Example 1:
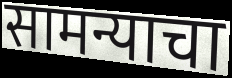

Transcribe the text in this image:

सामन्याचा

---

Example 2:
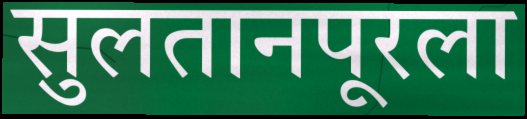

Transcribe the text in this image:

सुलतानपूरला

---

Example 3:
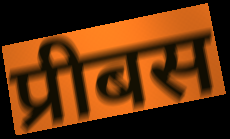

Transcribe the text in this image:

प्रीबस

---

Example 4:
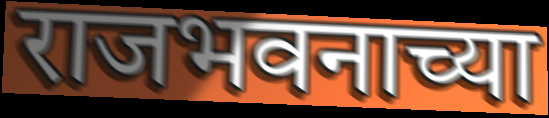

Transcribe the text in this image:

राजभवनाच्या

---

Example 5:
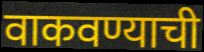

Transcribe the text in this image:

वाकवण्याची